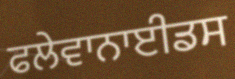
ਫਲੇਵਾਨਾਈਡਸ